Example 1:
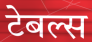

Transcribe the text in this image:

टेबल्स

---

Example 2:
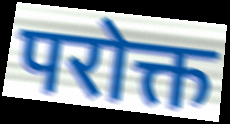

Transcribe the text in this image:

परोक्त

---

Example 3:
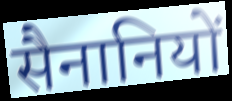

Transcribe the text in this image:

सैनानियों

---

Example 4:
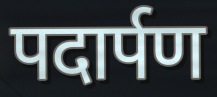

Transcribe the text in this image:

पदार्पण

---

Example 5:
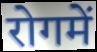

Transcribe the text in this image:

रोगमें